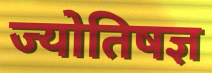
ज्योतिषज्ञ